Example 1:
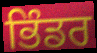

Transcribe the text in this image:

ਭਿੰਡਰ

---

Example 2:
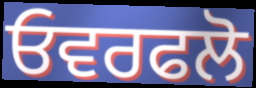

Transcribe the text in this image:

ਓਵਰਫਲੋ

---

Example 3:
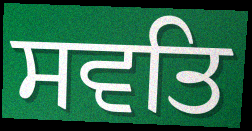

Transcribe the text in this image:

ਸਵਤਿ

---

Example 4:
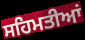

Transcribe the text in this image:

ਸਹਿਮਤੀਆਂ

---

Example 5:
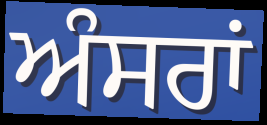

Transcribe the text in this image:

ਅੰਸਰਾਂ